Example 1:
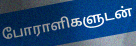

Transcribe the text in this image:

போராளிகளுடன்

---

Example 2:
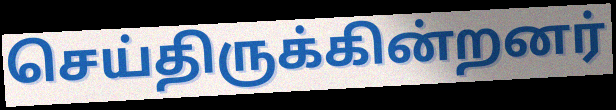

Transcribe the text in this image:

செய்திருக்கின்றனர்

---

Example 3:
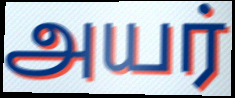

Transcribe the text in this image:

அயர்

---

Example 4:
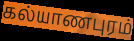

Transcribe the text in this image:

கல்யாணபுரம்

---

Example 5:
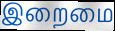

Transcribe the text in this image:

இறைமை